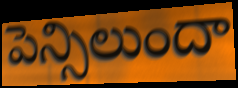
పెన్సిలుందా